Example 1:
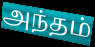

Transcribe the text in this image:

அந்தம்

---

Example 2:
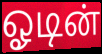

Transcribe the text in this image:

ஓடின்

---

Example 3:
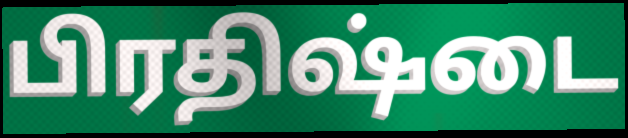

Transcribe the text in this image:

பிரதிஷ்டை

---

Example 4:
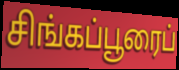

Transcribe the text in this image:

சிங்கப்பூரைப்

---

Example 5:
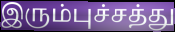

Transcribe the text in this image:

இரும்புச்சத்து